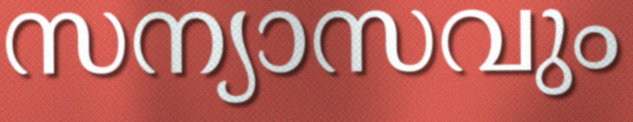
സന്യാസവും